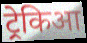
ट्रेकिआ